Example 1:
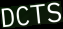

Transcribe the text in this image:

DCTS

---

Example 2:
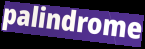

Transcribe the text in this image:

palindrome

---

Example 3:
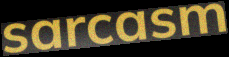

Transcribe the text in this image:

sarcasm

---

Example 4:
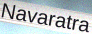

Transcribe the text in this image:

Navaratra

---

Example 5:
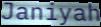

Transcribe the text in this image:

Janiyah